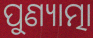
ପୁଣ୍ୟାତ୍ମା